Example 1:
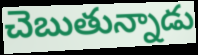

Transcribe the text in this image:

చెబుతున్నాడు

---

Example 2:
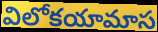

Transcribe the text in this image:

విలోకయామాస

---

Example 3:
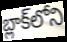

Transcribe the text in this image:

బ్లాక్‌లోని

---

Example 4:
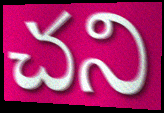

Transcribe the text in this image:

చని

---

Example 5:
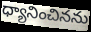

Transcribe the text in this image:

ధ్యానించినను